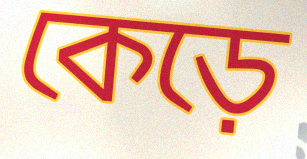
কেড়ে